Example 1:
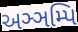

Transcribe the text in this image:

અઞ્ઞમ્પિ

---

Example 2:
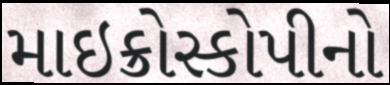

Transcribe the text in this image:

માઇક્રોસ્કોપીનો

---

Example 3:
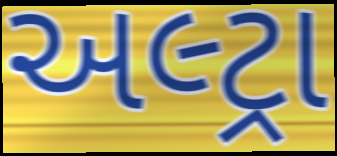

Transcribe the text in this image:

અલ્ટ્રા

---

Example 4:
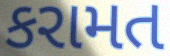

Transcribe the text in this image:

કરામત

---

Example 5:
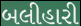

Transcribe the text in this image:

બલીહારી